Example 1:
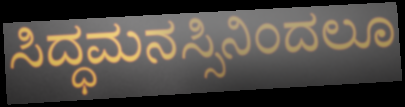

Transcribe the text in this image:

ಸಿದ್ಧಮನಸ್ಸಿನಿಂದಲೂ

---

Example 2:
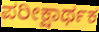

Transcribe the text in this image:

ಪರೀಕ್ಷಾರ್ಥಕ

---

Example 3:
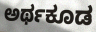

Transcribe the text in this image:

ಅರ್ಥಕೂಡ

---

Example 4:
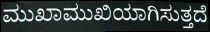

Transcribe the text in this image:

ಮುಖಾಮುಖಿಯಾಗಿಸುತ್ತದೆ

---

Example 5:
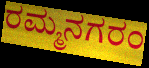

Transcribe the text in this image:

ರಮ್ಮನಗರಂ